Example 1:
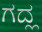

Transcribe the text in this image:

ಗದ್ಲ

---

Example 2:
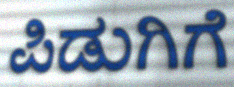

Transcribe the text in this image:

ಪಿಡುಗಿಗೆ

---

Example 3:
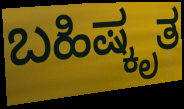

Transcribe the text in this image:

ಬಹಿಷ್ಕೃತ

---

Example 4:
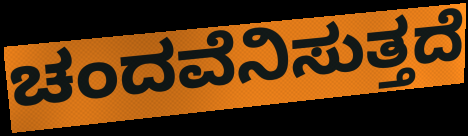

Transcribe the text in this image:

ಚಂದವೆನಿಸುತ್ತದೆ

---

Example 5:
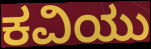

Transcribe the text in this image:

ಕವಿಯು